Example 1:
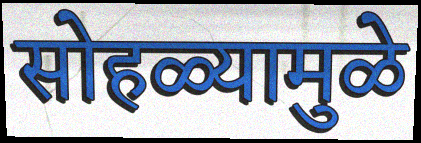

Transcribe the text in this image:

सोहळ्यामुळे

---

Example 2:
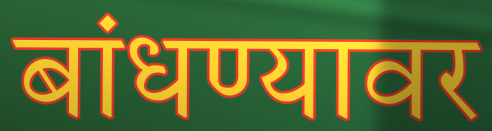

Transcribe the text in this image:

बांधण्यावर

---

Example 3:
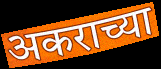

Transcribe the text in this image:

अकराच्या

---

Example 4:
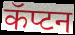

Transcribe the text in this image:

कॅप्टन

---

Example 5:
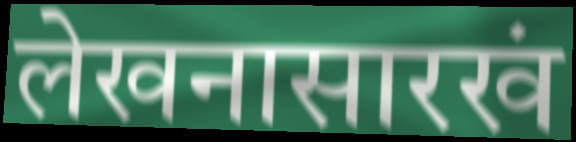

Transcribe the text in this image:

लेखनासारखं